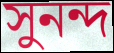
সুনন্দ